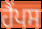
ਹੈਂਪਸ